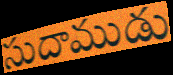
సుదాముడు